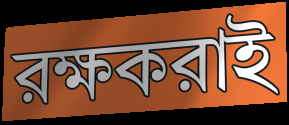
রক্ষকরাই